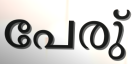
പേരു്